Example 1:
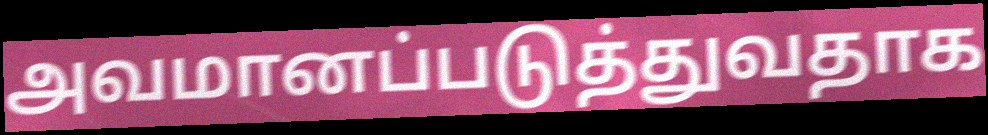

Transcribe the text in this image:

அவமானப்படுத்துவதாக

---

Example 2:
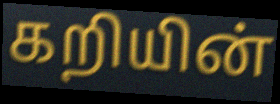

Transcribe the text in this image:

கறியின்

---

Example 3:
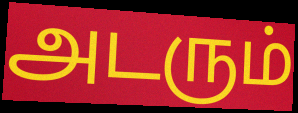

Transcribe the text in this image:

அடரும்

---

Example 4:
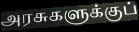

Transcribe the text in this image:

அரசுகளுக்குப்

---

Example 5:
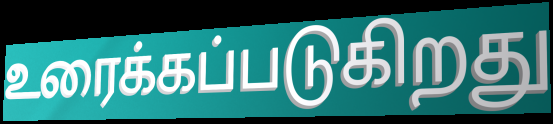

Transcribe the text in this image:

உரைக்கப்படுகிறது